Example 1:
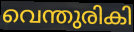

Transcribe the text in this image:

വെന്തുരികി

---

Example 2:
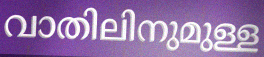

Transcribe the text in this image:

വാതിലിനുമുള്ള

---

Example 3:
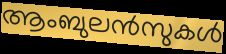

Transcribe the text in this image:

ആംബുലൻസുകൾ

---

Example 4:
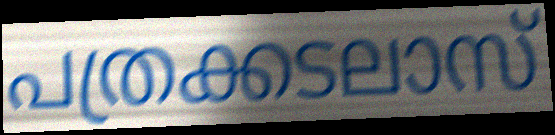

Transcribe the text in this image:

പത്രക്കടലാസ്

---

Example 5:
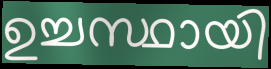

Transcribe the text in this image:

ഉച്ചസ്ഥായി